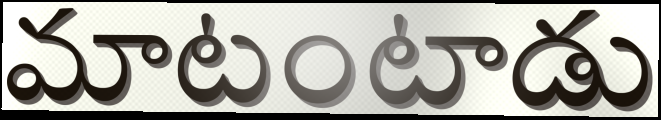
మాటంటాడు